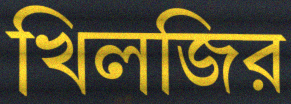
খিলজির